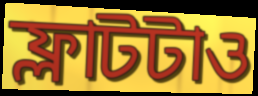
ফ্লাটটাও